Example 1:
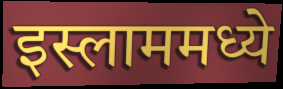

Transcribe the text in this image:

इस्लाममध्ये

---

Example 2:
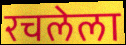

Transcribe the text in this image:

रचलेला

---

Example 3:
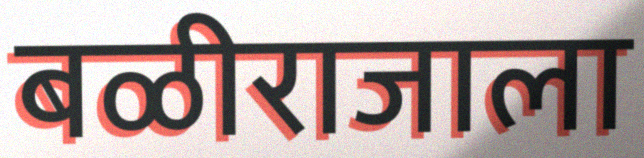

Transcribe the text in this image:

बळीराजाला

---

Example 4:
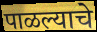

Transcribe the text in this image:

पाळल्याचे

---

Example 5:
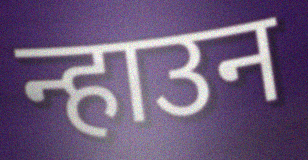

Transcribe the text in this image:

न्हाउन